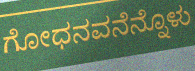
ಗೋಧನವನೆನ್ನೊಳು